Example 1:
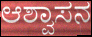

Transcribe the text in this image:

ಆಶ್ವಾಸನ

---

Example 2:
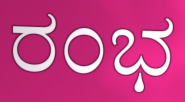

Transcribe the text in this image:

ರಂಭ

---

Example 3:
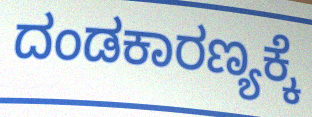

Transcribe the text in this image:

ದಂಡಕಾರಣ್ಯಕ್ಕೆ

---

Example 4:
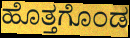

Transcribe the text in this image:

ಹೊತ್ತಗೊಂಡ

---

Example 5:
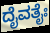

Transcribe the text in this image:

ದೈವತೈಃ